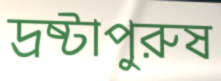
দ্রষ্টাপুরুষ